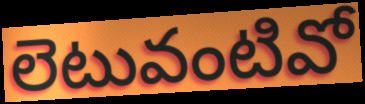
లెటువంటివో